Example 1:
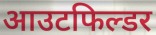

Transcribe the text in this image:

आउटफिल्डर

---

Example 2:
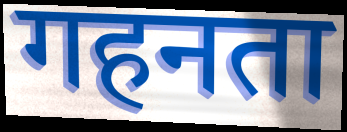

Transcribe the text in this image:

गहनता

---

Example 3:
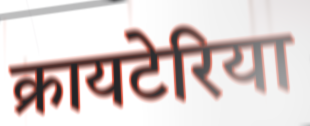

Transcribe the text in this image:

क्रायटेरिया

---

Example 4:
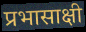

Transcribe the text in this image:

प्रभासाक्षी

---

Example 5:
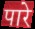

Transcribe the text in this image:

पारे